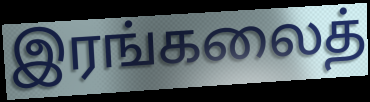
இரங்கலைத்